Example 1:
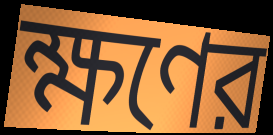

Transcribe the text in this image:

ক্ষণের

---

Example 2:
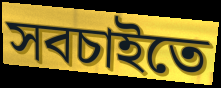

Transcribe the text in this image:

সবচাইতে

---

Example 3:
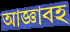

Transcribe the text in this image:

আজ্ঞাবহ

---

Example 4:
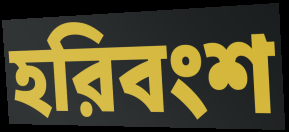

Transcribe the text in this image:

হরিবংশ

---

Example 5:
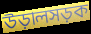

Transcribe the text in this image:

উড়ালসড়ক